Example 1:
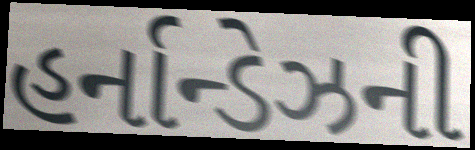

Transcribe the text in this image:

હર્નાન્ડેઝની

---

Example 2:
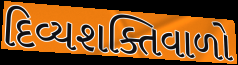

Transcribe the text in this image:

દિવ્યશક્તિવાળો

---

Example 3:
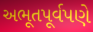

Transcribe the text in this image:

અભૂતપૂર્વપણે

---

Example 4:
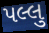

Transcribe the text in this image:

પલ્લુ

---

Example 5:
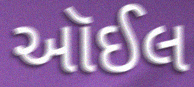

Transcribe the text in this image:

ઑઈલ